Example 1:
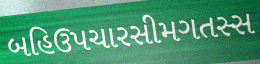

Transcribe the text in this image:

બહિઉપચારસીમગતસ્સ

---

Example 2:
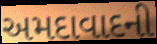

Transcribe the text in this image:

અમદાવાદની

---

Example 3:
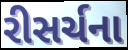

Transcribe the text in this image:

રીસર્ચના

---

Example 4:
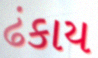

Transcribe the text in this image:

ઢંકાય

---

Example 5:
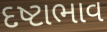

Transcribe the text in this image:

દષ્ટાભાવ